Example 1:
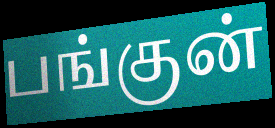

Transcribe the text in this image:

பங்குன்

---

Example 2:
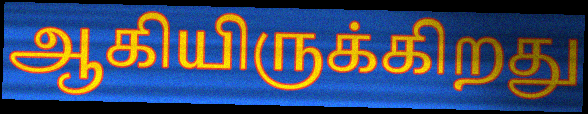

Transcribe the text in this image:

ஆகியிருக்கிறது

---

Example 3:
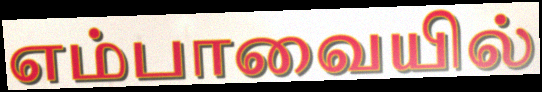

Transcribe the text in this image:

எம்பாவையில்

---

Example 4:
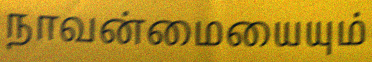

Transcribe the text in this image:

நாவன்மையையும்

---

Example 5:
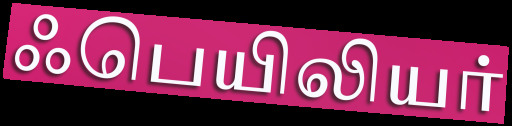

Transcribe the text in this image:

ஃபெயிலியர்